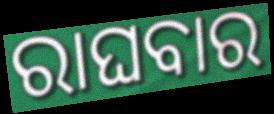
ରାଘବାର